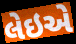
લેઇએ